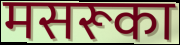
मसरूका